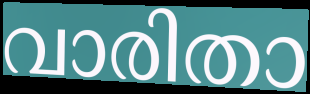
വാരിതാ